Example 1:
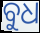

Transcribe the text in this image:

ବୁଧ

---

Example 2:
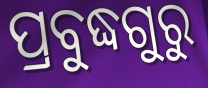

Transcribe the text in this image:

ପ୍ରବୁଦ୍ଧଗୁରୁ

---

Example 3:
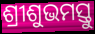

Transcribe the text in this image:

ଶ୍ରୀଶୁଭମସ୍ତୁ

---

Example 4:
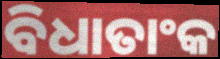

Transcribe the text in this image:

ବିଧାତାଂକ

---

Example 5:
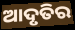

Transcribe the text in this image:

ଆଦୃତିର